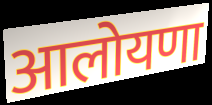
आलोयणा